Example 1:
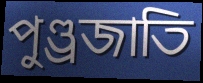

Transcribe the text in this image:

পুণ্ড্রজাতি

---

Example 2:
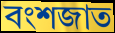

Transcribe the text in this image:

বংশজাত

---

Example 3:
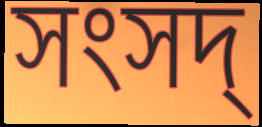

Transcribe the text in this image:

সংসদ্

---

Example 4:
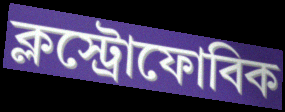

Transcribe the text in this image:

ক্লস্ট্রোফোবিক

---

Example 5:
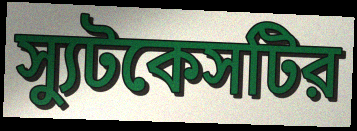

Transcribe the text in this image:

স্যুটকেসটির